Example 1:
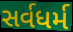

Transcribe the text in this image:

સર્વધર્મ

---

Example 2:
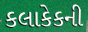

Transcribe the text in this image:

કલાકેકની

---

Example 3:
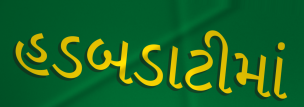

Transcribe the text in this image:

હડબડાટીમાં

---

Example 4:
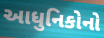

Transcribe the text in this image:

આધુનિકોનો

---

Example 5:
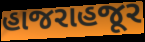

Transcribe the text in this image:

હાજરાહજૂર